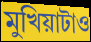
মুখিয়াটাও